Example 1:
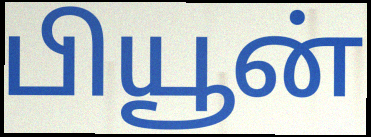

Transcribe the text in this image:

பியூன்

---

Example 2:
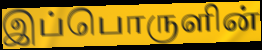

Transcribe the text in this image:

இப்பொருளின்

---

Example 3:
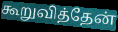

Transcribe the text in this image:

கூறுவித்தேன்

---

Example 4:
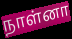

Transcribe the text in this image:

நாள்னா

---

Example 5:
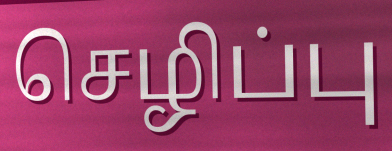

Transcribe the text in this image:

செழிப்பு